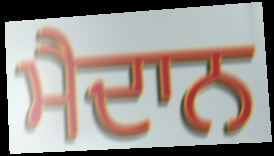
ਮੈਦਾਨ